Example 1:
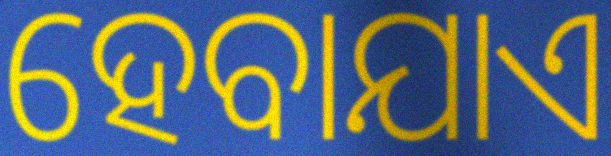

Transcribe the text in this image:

ହେବାଯାଏ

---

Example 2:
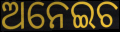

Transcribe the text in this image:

ଅନେଇଚ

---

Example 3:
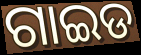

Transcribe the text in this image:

ଗାଇଡ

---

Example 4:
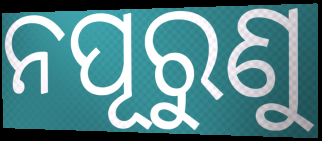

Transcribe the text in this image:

ନପୂରୁଣୁ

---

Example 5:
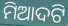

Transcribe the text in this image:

ମିଆଦଟି